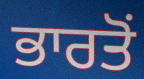
ਭਾਰਤੋਂ